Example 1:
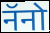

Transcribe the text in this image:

नॅनो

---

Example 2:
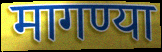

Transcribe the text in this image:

मागण्या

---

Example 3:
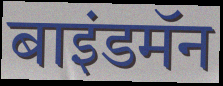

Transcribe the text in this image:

बाइंडमॅन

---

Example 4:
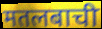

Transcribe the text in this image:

मतलबाची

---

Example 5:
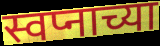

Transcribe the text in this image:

स्वप्नाच्या